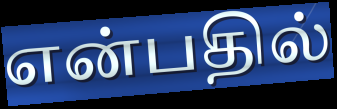
என்பதில்